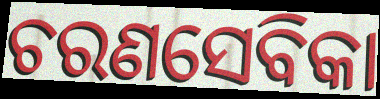
ଚରଣସେବିକା